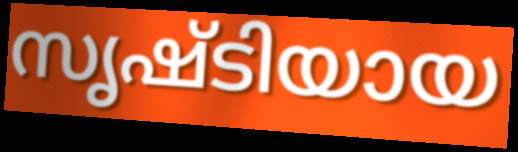
സൃഷ്ടിയായ